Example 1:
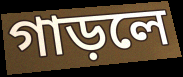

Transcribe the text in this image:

গাড়লে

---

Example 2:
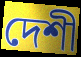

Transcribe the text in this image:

দেশী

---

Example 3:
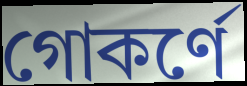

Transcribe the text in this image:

গোকর্ণে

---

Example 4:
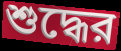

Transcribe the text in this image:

শুদ্ধের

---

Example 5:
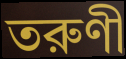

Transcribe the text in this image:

তরুণী